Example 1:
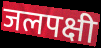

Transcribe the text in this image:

जलपक्षी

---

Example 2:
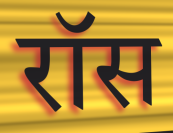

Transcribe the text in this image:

रॉस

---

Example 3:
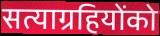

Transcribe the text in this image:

सत्याग्रहियोंको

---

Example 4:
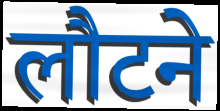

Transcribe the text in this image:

लौटने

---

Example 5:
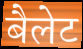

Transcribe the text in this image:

बैलेट